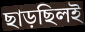
ছাড়ছিলই